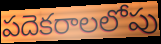
పదెకరాలలోపు